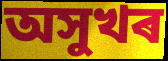
অসুখৰ